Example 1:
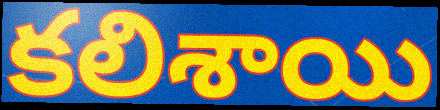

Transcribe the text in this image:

కలిశాయి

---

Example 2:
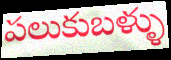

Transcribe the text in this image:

పలుకుబళ్ళు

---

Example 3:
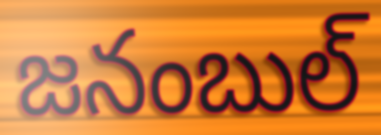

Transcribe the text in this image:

జనంబుల్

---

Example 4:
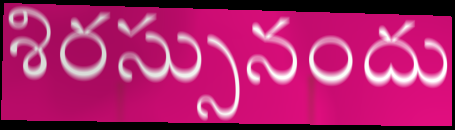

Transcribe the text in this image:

శిరస్సునందు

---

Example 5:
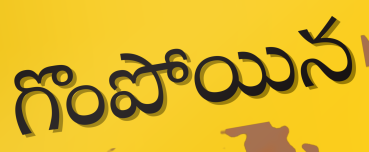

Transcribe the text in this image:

గొంపోయిన